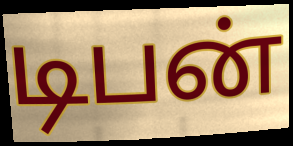
டிபன்